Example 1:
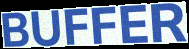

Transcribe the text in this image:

BUFFER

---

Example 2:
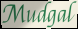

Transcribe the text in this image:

Mudgal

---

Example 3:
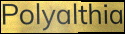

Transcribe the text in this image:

Polyalthia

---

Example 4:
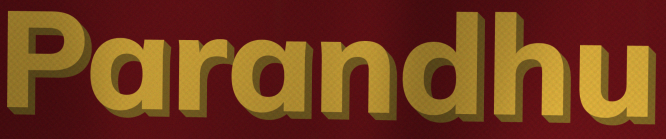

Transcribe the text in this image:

Parandhu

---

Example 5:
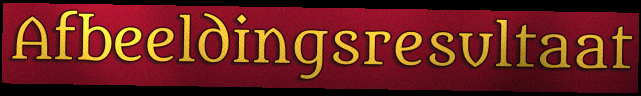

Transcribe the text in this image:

Afbeeldingsresultaat